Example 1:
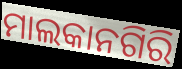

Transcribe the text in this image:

ମାଲକାନଗିରି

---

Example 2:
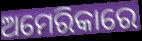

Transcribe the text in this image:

ଅମେରିକାରେ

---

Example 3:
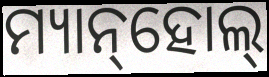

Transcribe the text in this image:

ମ୍ୟାନ୍‌ହୋଲ୍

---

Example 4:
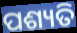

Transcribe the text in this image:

ପଶ୍ୟତି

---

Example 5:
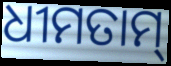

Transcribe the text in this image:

ଧୀମତାମ୍